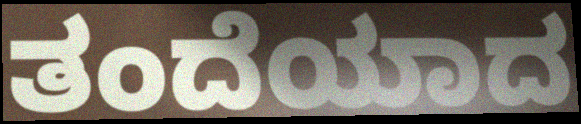
ತಂದೆಯಾದ